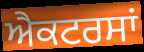
ਐਕਟਰਸਾਂ